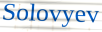
Solovyev